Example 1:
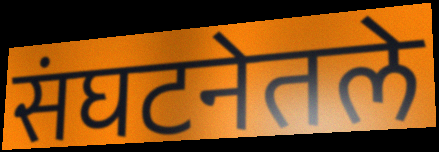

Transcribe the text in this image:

संघटनेतले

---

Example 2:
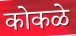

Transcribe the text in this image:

कोकळे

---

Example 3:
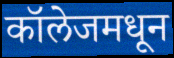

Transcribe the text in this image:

कॉलेजमधून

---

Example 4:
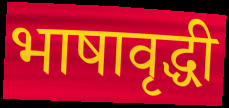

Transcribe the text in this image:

भाषावृद्धी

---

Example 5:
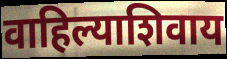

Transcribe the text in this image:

वाहिल्याशिवाय